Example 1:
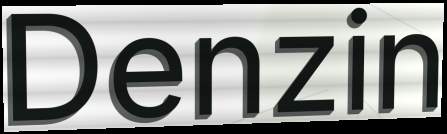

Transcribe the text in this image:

Denzin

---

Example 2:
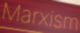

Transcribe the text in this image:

Marxism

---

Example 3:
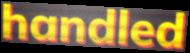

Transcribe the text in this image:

handled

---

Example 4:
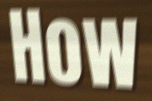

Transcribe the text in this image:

How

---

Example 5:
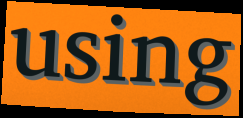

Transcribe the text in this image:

using